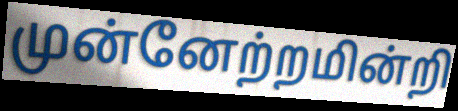
முன்னேற்றமின்றி